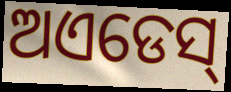
ଅଏଡେସ୍